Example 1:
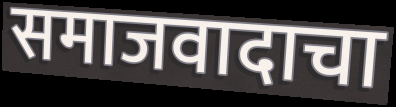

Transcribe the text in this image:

समाजवादाचा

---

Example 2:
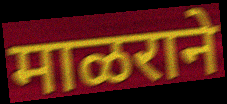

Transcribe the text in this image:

माळराने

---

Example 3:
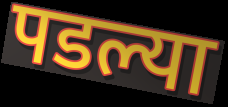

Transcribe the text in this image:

पडल्या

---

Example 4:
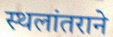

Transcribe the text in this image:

स्थलांतराने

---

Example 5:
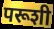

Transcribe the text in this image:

परूशी